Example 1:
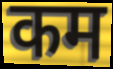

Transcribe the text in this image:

कम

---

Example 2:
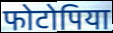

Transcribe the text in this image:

फोटोपिया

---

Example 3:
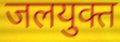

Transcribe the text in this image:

जलयुक्त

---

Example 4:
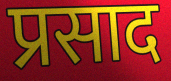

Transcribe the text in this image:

प्रसाद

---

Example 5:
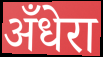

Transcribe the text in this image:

अँधेरा